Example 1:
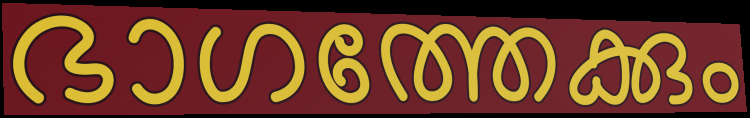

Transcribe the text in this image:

ഭാഗത്തേക്കും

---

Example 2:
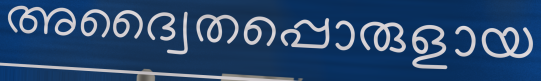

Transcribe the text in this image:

അദ്വൈതപ്പൊരുളായ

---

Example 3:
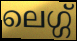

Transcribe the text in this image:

ലെഗ്ഗ്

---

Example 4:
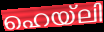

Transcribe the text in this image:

ഹെയ്‌ലി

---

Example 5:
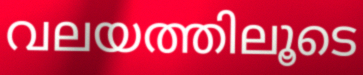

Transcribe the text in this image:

വലയത്തിലൂടെ